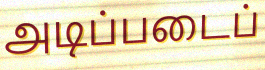
அடிப்படைப்